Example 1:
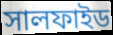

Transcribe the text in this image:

সালফাইড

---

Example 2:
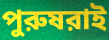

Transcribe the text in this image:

পুরুষরাই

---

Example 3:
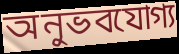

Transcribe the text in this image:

অনুভবযোগ্য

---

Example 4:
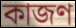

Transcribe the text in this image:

কাজণ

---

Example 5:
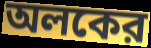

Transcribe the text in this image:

অলকের